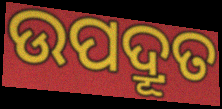
ଉପଦ୍ରୂତ